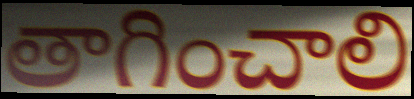
తాగించాలి